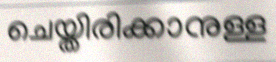
ചെയ്തിരിക്കാനുള്ള